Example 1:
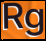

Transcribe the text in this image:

Rg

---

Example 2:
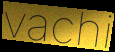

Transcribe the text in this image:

vachi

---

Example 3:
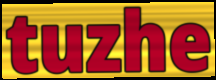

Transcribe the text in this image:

tuzhe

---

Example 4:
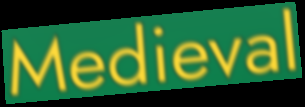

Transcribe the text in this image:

Medieval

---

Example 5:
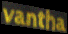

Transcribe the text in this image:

vantha